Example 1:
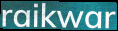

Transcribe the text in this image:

raikwar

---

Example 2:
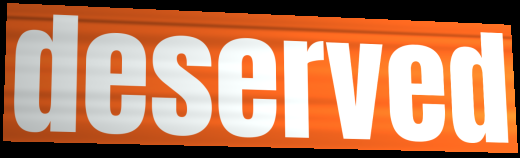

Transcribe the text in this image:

deserved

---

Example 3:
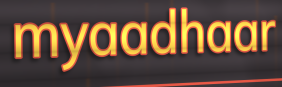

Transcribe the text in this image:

myaadhaar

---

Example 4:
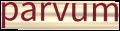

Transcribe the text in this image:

parvum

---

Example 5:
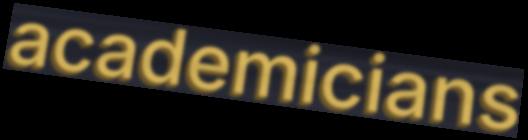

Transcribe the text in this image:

academicians